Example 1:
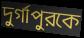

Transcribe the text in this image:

দুর্গাপুরকে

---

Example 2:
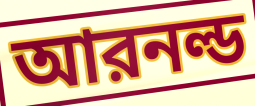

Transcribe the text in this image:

আরনল্ড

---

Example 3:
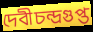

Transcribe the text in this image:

দেবীচন্দ্রগুপ্ত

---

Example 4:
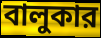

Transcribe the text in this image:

বালুকার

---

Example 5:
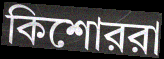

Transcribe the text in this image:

কিশোররা